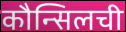
कौन्सिलची